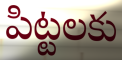
పిట్టలకు